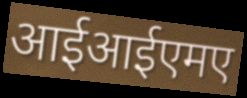
आईआईएमए